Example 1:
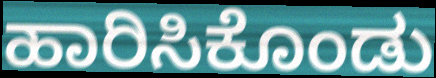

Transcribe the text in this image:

ಹಾರಿಸಿಕೊಂಡು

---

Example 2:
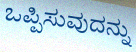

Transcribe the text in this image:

ಒಪ್ಪಿಸುವುದನ್ನು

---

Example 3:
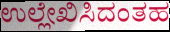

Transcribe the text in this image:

ಉಲ್ಲೇಖಿಸಿದಂತಹ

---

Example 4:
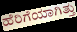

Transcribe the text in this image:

ಹೆರಿಗೆಯಾಗಿತ್ತು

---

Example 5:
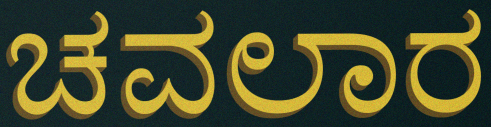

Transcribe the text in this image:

ಚವಲಾರ